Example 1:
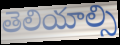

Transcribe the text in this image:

తెలియాల్సి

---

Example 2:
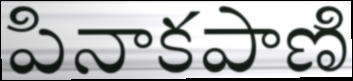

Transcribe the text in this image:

పినాకపాణి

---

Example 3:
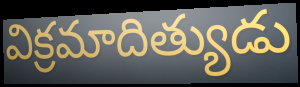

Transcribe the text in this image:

విక్రమాదిత్యుడు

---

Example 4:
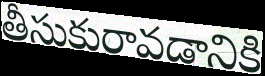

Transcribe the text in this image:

తీసుకురావడానికి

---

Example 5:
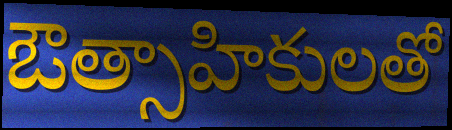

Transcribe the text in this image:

ఔత్సాహికులతో